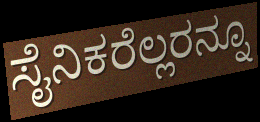
ಸೈನಿಕರೆಲ್ಲರನ್ನೂ